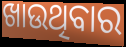
ଖାଉଥିବାର